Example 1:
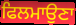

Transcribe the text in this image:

ਫਿਲਮਾਉਣਾ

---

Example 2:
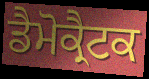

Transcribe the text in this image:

ਡੈਮੋਕ੍ਰੈਟਕ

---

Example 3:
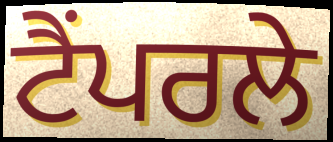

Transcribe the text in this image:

ਟੈਂਪਰਲੇ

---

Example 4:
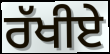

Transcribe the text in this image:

ਰੱਖੀਏ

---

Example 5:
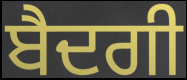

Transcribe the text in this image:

ਬੈਦਗੀ